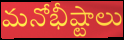
మనోభీష్టాలు